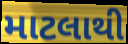
માટલાથી